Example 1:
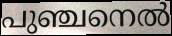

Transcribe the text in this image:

പുഞ്ചനെൽ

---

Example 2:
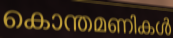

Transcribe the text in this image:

കൊന്തമണികൾ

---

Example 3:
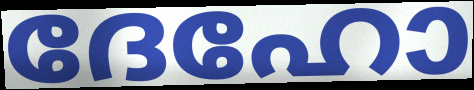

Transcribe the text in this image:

ദേഹോ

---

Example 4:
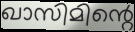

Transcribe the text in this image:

ഖാസിമിന്റെ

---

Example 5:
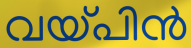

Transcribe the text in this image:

വയ്പിൻ